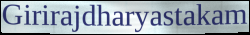
Girirajdharyastakam